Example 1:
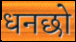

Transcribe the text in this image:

धनछो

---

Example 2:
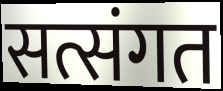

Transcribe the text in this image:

सत्संगत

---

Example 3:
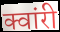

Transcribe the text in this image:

क्वांरी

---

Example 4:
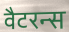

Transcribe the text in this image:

वैटरन्स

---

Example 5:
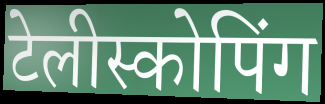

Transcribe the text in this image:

टेलीस्कोपिंग